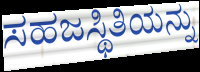
ಸಹಜಸ್ಥಿತಿಯನ್ನು